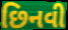
છિનવી